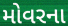
મોવરના